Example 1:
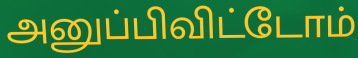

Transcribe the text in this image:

அனுப்பிவிட்டோம்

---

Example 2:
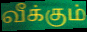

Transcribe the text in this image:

வீக்கும்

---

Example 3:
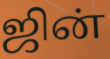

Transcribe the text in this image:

ஜின்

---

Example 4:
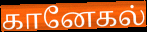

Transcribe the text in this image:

கானேகல்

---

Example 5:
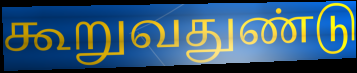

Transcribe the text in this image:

கூறுவதுண்டு